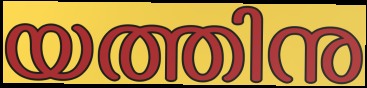
യത്തിനു